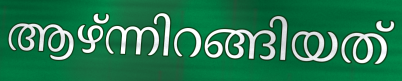
ആഴ്ന്നിറങ്ങിയത്